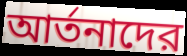
আর্তনাদের